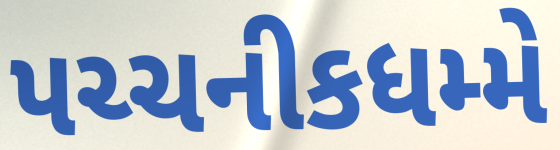
પચ્ચનીકધમ્મે